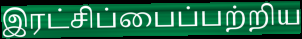
இரட்சிப்பைப்பற்றிய